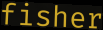
fisher